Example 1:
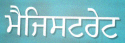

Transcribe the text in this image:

ਮੈਜਿਸਟਰੇਟ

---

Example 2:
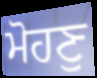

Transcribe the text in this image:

ਮੋਹਣੁ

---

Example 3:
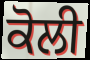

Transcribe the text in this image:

ਕੋਲੀ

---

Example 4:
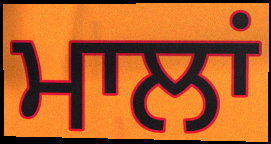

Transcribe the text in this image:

ਮਾਲਾਂ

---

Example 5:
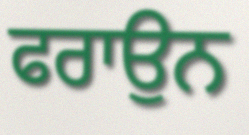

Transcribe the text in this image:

ਫਰਾਉਨ